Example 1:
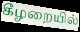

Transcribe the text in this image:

கீழறையில்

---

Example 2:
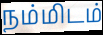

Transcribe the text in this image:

நம்மிடம்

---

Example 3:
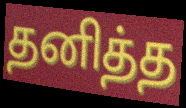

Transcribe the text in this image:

தனித்த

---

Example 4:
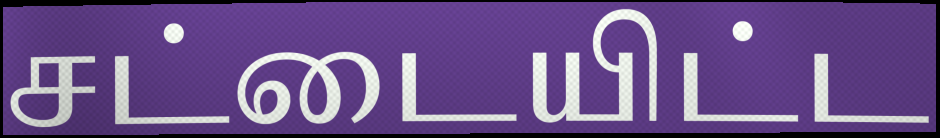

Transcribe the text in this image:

சட்டையிட்ட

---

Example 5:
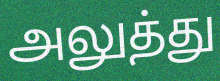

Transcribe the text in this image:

அலுத்து